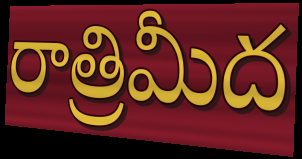
రాత్రిమీద